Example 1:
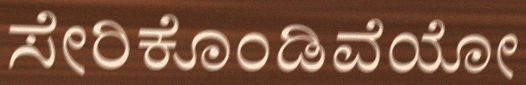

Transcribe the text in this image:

ಸೇರಿಕೊಂಡಿವೆಯೋ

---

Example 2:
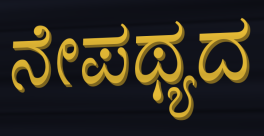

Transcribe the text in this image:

ನೇಪಥ್ಯದ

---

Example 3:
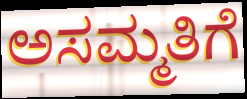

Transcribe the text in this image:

ಅಸಮ್ಮತಿಗೆ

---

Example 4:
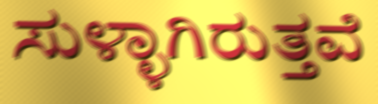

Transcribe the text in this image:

ಸುಳ್ಳಾಗಿರುತ್ತವೆ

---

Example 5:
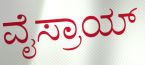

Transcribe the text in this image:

ವೈಸ್ರಾಯ್